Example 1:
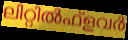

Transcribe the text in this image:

ലിറ്റിൽഫ്ളവർ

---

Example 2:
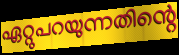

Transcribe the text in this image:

ഏറ്റുപറയുന്നതിന്റെ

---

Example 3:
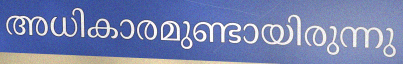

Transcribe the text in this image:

അധികാരമുണ്ടായിരുന്നു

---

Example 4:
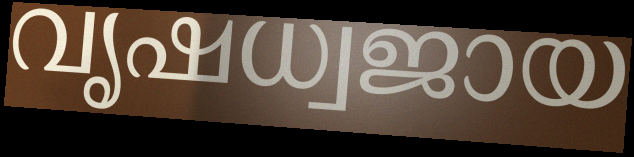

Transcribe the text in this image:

വൃഷധ്വജായ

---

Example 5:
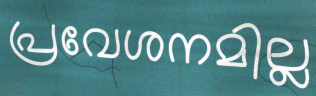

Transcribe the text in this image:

പ്രവേശനമില്ല